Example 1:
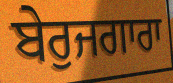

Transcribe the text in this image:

ਬੇਰੁਜਗਾਰਾ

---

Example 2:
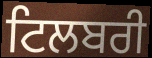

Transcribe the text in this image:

ਟਿਲਬਰੀ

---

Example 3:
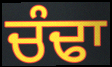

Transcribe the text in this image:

ਚੰਢਾ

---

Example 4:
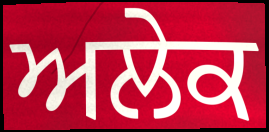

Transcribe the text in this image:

ਅਲੇਕ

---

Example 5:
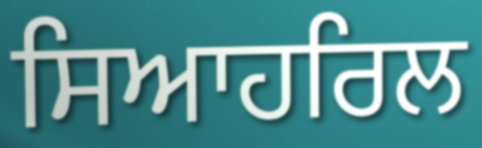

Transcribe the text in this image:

ਸਿਆਹਰਿਲ